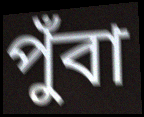
পুঁবা